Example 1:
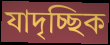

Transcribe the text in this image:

যাদৃচ্ছিক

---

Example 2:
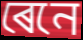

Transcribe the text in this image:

ৰেনে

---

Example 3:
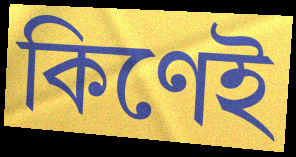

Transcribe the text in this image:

কিণেই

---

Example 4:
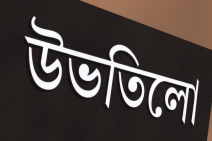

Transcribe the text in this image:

উভতিলো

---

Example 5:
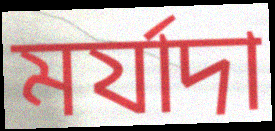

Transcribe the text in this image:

মৰ্যাদা